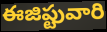
ఈజిప్టువారి